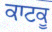
ਕਾਟਕੂ